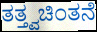
ತತ್ತ್ವಚಿಂತನೆ